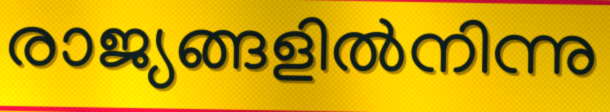
രാജ്യങ്ങളിൽനിന്നു